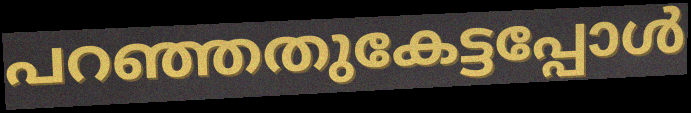
പറഞ്ഞതുകേട്ടപ്പോൾ